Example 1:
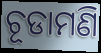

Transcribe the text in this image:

ଚୂଡାମଣି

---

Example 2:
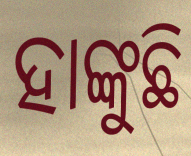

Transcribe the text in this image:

ହାଙ୍କୁଛି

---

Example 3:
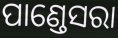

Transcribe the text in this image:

ପାଣ୍ଡେସରା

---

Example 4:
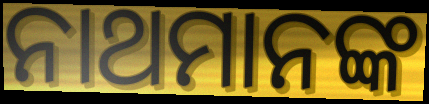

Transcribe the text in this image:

ନାଥମାନଙ୍କ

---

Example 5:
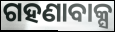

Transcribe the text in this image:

ଗହଣାବାକ୍ସ